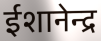
ईशानेन्द्र